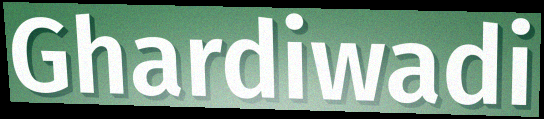
Ghardiwadi